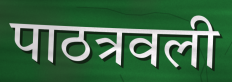
पाठत्रवली